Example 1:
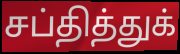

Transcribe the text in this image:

சப்தித்துக்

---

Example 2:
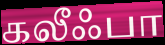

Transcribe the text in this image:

கலீஃபா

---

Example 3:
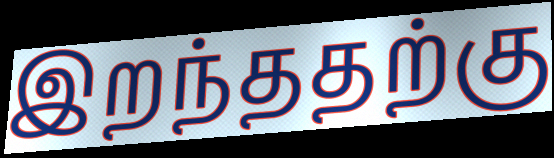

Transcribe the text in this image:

இறந்ததற்கு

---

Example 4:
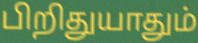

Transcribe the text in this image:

பிறிதுயாதும்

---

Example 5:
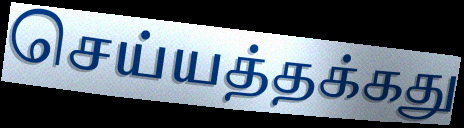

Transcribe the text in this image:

செய்யத்தக்கது